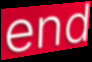
end